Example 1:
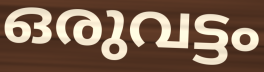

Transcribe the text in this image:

ഒരുവട്ടം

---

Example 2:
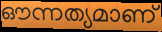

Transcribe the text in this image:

ഔന്നത്യമാണ്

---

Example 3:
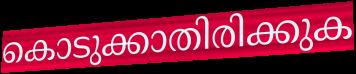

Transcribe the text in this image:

കൊടുക്കാതിരിക്കുക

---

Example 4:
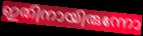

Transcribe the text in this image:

ഇതിനായിരുന്നോ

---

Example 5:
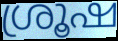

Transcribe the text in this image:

ശ്രൂഷ